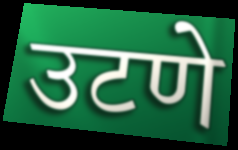
उटणे